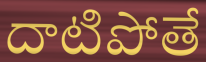
దాటిపోతే